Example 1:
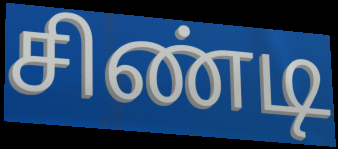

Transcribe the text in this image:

சிண்டி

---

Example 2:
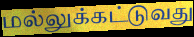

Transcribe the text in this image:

மல்லுக்கட்டுவது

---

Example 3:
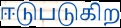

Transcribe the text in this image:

ஈடுபடுகிற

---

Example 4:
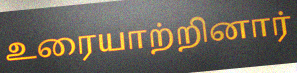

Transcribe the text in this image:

உரையாற்றினார்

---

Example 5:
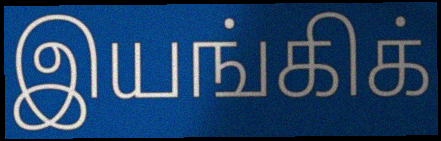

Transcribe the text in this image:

இயங்கிக்